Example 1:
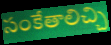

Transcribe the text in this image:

సంకేతాలిచ్చి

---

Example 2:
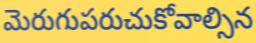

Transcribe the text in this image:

మెరుగుపరుచుకోవాల్సిన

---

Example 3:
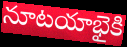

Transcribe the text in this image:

నూటయాభైకి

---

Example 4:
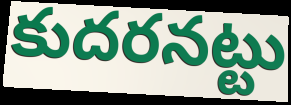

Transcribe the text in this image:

కుదరనట్టు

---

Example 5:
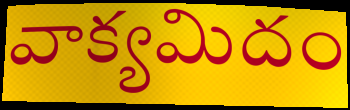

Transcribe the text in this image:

వాక్యమిదం